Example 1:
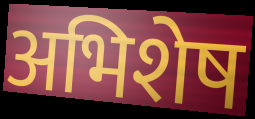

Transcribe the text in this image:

अभिशेष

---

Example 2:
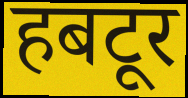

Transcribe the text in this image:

हबटूर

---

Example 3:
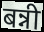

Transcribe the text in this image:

बन्नी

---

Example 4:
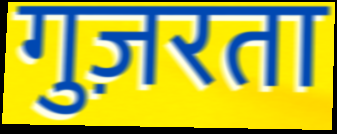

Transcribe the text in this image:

गुज़रता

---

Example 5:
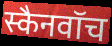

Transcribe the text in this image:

स्कैनवॉच